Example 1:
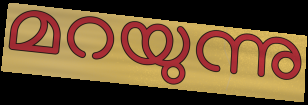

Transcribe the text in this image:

മറയുന്നു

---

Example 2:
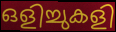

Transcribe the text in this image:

ഒളിച്ചുകളി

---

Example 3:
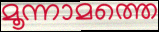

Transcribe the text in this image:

മൂന്നാമത്തെ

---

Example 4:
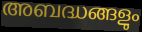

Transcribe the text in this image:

അബദ്ധങ്ങളും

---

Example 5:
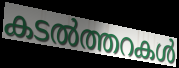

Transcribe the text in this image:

കടൽത്തറകൾ